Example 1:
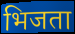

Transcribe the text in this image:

भिजता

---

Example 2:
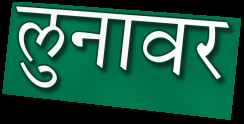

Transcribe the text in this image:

लुनावर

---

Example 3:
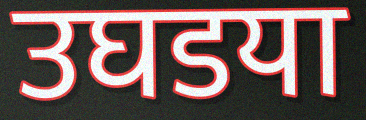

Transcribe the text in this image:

उघडया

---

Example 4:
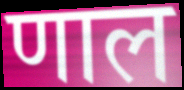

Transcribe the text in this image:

णाल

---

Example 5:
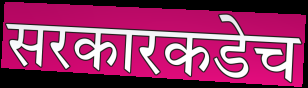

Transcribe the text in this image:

सरकारकडेच